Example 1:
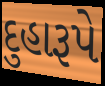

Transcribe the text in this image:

દુહારૂપે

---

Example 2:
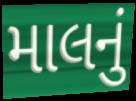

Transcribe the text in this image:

માલનું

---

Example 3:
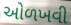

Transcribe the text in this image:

ઓળખવી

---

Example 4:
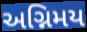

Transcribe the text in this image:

અગ્નિમય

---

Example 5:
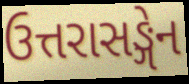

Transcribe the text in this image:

ઉત્તરાસઙ્ગેન